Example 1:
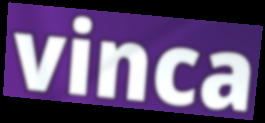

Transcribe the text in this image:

vinca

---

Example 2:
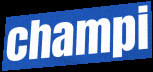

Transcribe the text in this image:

champi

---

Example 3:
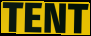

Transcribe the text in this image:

TENT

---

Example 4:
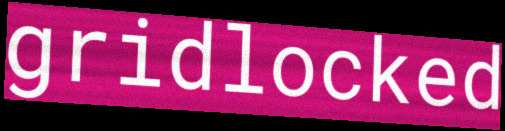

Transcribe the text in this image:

gridlocked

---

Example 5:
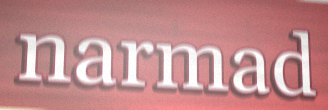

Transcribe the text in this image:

narmad